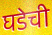
घडेची